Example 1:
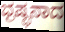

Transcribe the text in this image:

ಭ್ರಷ್ಟನಾದ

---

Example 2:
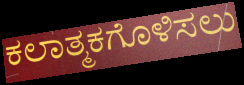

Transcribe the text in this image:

ಕಲಾತ್ಮಕಗೊಳಿಸಲು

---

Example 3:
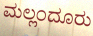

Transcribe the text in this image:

ಮಲ್ಲಂದೂರು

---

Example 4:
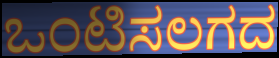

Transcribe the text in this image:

ಒಂಟಿಸಲಗದ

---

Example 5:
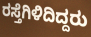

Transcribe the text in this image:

ರಸ್ತೆಗಿಳಿದಿದ್ದರು